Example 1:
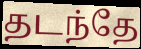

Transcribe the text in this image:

தடந்தே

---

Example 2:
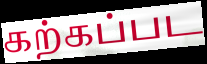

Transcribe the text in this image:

கற்கப்பட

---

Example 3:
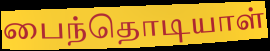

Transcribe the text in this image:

பைந்தொடியாள்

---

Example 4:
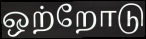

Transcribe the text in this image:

ஒற்றோடு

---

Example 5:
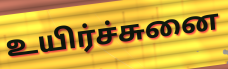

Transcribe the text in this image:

உயிர்ச்சுனை